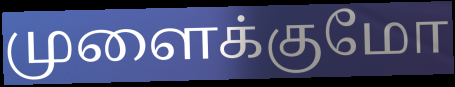
முளைக்குமோ